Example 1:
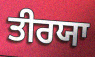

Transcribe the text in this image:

ਤੀਰਯਾ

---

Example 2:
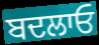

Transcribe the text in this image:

ਬਦਲਾਓ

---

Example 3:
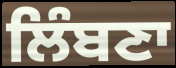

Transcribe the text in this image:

ਲਿੰਬਣਾ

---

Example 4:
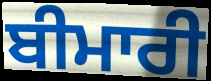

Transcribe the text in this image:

ਬੀਮਾਰੀ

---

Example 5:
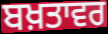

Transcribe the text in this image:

ਬਖ਼ਤਾਵਰ